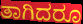
ತಾಗಿದರೂ